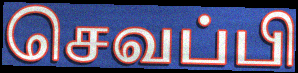
செவப்பி